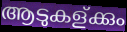
ആടുകള്ക്കും